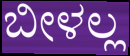
ಬೀಳಲ್ಲ